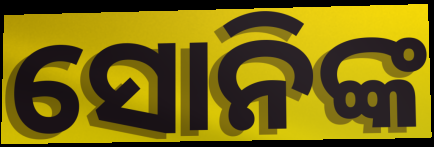
ସୋନିଙ୍କ